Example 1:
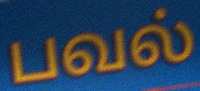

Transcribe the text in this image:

பவல்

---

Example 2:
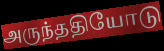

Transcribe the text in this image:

அருந்ததியோடு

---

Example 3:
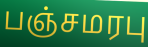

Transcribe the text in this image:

பஞ்சமரபு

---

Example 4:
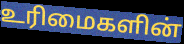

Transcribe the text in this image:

உரிமைகளின்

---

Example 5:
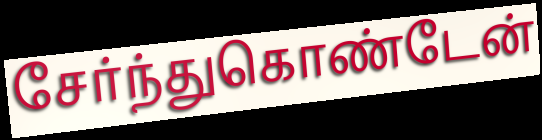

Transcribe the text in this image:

சேர்ந்துகொண்டேன்